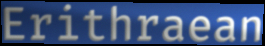
Erithraean